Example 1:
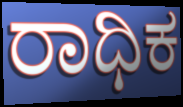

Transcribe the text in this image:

ರಾಧಿಕ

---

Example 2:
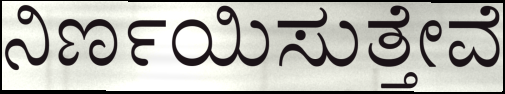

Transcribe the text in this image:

ನಿರ್ಣಯಿಸುತ್ತೇವೆ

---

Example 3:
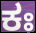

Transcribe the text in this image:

ಕಃ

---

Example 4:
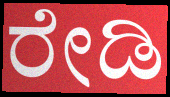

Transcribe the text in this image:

ರೇಡಿ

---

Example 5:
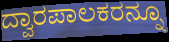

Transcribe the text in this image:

ದ್ವಾರಪಾಲಕರನ್ನೂ